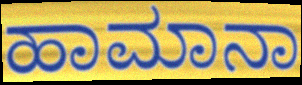
ಹಾಮಾನಾ